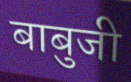
बाबुजी